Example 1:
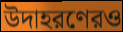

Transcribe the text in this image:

উদাহরণেরও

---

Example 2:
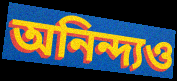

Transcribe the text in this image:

অনিন্দ্যও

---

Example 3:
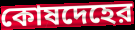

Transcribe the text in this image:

কোষদেহের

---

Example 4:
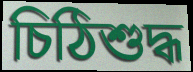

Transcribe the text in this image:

চিঠিশুদ্ধ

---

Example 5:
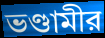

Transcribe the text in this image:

ভণ্ডামীর